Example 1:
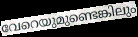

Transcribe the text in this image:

വേറെയുമുണ്ടെങ്കിലും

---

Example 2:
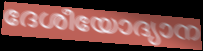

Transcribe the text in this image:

ദേശീയോദ്യാന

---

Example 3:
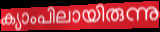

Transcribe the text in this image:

ക്യാംപിലായിരുന്നു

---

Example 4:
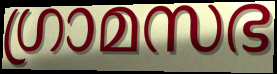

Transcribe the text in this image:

ഗ്രാമസഭ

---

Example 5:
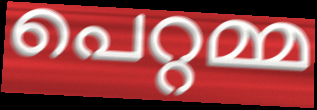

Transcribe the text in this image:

പെറ്റമ്മ